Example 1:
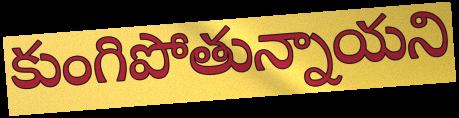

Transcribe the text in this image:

కుంగిపోతున్నాయని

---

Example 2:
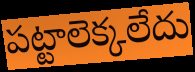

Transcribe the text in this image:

పట్టాలెక్కలేదు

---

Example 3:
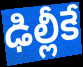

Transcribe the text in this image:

ఢిల్లీకే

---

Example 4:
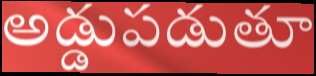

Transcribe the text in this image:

అడ్డుపడుతూ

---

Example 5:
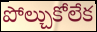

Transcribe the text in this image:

పోల్చుకోలేక